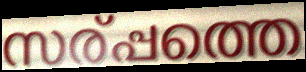
സര്പ്പത്തെ